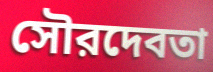
সৌরদেবতা